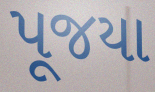
પૂજયા